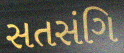
સતસંગિ